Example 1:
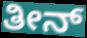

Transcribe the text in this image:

ತೀನ್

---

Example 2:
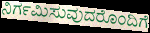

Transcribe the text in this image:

ನಿರ್ಗಮಿಸುವುದರೊಂದಿಗೆ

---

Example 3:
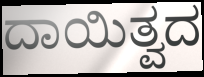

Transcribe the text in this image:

ದಾಯಿತ್ವದ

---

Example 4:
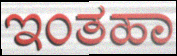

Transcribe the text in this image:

ಇಂತಹಾ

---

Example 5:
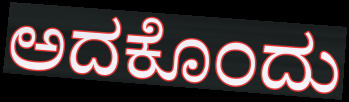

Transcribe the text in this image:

ಅದಕೊಂದು